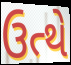
ઉત્થે